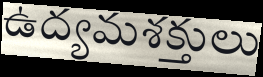
ఉద్యమశక్తులు